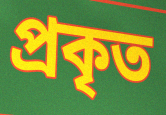
প্রকৃত